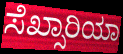
ಸೆಖ್ಸಾರಿಯಾ